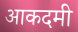
आकदमी